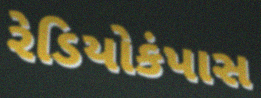
રેડિયોકંપાસ